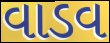
વાડવ